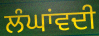
ਲੰਘਾਂਵਦੀ